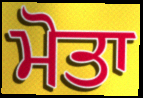
ਮੋਤਾ